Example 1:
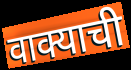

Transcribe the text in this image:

वाक्याची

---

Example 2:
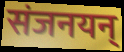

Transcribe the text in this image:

संजनयन्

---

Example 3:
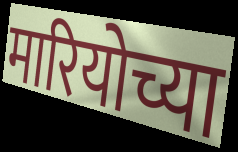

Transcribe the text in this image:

मारियोच्या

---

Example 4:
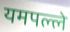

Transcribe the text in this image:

यमपल्ले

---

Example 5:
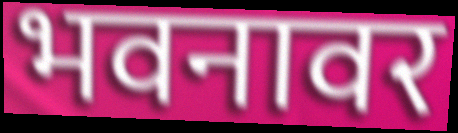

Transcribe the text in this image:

भवनावर